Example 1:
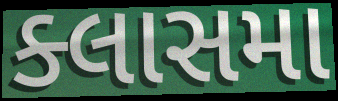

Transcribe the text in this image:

ક્લાસમા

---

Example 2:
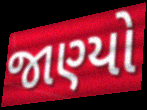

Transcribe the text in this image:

જાણ્યો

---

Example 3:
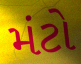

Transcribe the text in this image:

મંટો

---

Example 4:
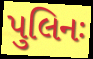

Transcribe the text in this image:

પુલિનઃ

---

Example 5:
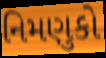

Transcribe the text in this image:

નિમણુકો